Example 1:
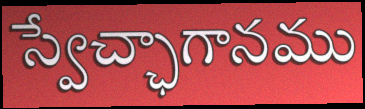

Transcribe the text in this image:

స్వేచ్ఛాగానము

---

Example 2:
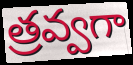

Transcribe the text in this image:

త్రవ్వగా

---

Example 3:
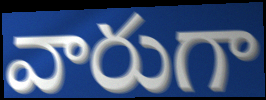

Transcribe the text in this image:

వారుగా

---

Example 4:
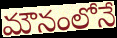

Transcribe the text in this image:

మౌనంలోనే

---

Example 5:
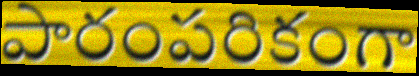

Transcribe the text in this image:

పారంపరికంగా